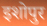
इशोपुर